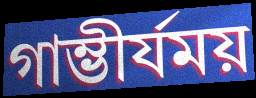
গাম্ভীর্যময়